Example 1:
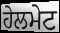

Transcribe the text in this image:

ਹੇਲਮੇਟ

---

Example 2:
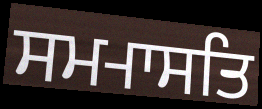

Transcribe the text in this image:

ਸਮ੍ਮਾਸਤਿ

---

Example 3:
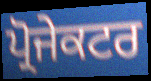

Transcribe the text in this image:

ਪ੍ਰੋਜੇਕਟਰ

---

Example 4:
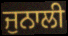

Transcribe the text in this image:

ਜੁਨਾਲੀ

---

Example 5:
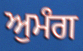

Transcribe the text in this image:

ਅੁਮੰਗ